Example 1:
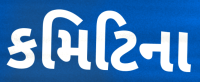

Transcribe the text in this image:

કમિટિના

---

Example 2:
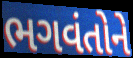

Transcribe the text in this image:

ભગવંતોને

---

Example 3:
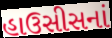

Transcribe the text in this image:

હાઉસીસનાં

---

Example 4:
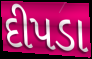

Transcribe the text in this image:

દીપડા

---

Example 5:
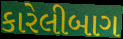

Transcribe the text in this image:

કારેલીબાગ